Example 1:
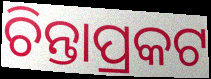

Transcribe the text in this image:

ଚିନ୍ତାପ୍ରକଟ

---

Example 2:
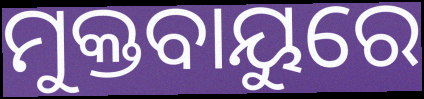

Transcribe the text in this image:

ମୁକ୍ତବାୟୁରେ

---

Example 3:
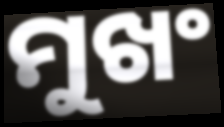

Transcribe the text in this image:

ମୁଖଂ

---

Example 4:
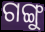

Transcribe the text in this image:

ଗଙ୍ଗୁ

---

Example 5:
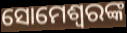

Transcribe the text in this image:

ସୋମେଶ୍ୱରଙ୍କ